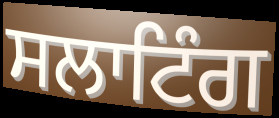
ਸਲਾਟਿੰਗ